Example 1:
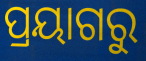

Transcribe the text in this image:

ପ୍ରୟାଗରୁ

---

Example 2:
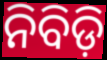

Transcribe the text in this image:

ନିବିଡ଼ି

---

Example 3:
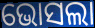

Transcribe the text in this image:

ଭୋସଲା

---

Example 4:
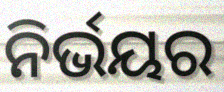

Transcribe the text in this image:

ନିର୍ଭୟର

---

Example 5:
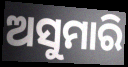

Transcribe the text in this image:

ଅସୁମାରି